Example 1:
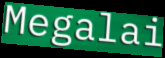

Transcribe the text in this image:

Megalai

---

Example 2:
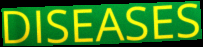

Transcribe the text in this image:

DISEASES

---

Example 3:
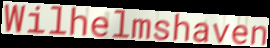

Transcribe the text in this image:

Wilhelmshaven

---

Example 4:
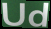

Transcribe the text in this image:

Ud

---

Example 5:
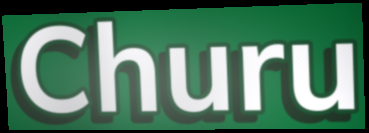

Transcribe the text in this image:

Churu